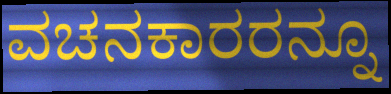
ವಚನಕಾರರನ್ನೂ